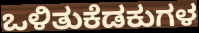
ಒಳಿತುಕೆಡಕುಗಳ